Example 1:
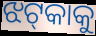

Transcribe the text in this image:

ଝଟ୍‌କାକୁ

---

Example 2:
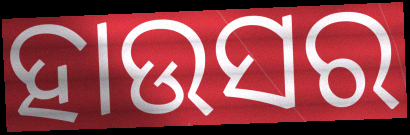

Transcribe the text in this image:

ହାଉସର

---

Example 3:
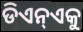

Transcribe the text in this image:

ଡିଏନ୍ଏକୁ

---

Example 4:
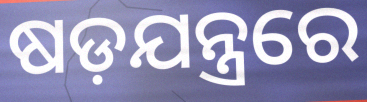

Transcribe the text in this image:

ଷଡ଼ଯନ୍ତ୍ରରେ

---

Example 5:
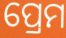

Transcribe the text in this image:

ପ୍ରେମ